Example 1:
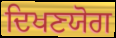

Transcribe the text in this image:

ਦਿਖਣਯੋਗ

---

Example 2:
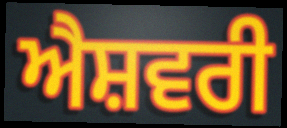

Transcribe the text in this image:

ਐਸ਼ਵਰੀ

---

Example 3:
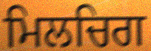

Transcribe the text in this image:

ਮਿਲਚਿਗ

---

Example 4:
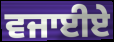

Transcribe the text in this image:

ਵਜਾਈਏ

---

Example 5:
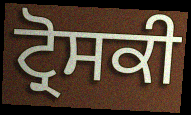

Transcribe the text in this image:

ਟ੍ਰੋਸਕੀ